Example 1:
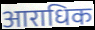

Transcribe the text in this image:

आराधिक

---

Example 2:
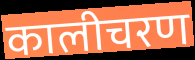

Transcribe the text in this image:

कालीचरण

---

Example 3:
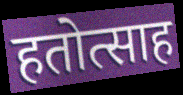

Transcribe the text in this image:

हतोत्साह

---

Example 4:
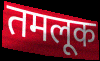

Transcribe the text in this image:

तमलूक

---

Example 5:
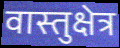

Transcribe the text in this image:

वास्तुक्षेत्र